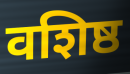
वशिष्ठ